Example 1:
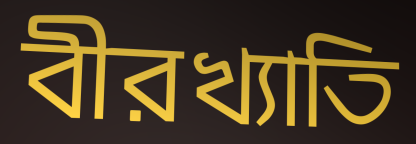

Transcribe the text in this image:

বীরখ্যাতি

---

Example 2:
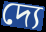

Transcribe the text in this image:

দ্যে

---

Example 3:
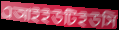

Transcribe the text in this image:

এআইইউটিইউসি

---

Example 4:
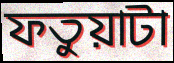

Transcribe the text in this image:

ফতুয়াটা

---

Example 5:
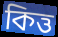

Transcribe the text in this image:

কিত্ত